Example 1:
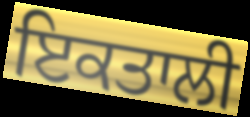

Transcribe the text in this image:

ਇਕਤਾਲੀ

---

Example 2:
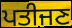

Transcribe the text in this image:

ਪਤੀਜਣ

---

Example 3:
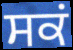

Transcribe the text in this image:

ਸਕਂ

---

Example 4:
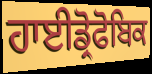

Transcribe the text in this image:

ਹਾਈਡ੍ਰੋਫੋਬਿਕ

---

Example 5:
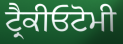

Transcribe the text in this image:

ਟ੍ਰੈਕੀਓਟੋਮੀ